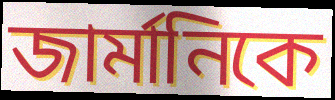
জার্মানিকে